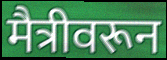
मैत्रीवरून